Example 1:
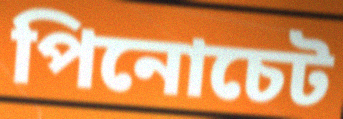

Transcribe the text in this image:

পিনোচেট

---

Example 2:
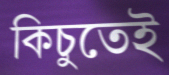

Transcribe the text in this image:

কিচুতেই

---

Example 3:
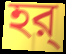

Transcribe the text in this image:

হর্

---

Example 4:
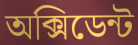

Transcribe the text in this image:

অক্সিডেন্ট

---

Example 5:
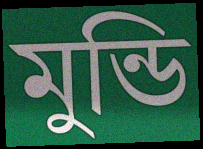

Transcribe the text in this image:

মুন্ডি